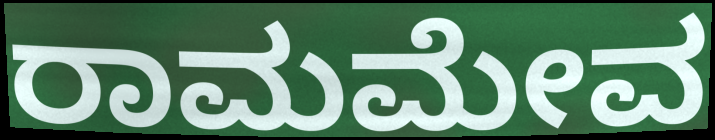
ರಾಮಮೇವ